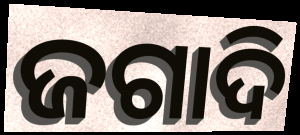
ଜଗାଦି